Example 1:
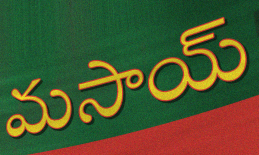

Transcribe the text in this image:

మసాయ్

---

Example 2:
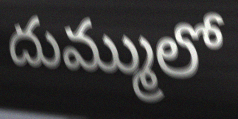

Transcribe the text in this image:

దుమ్ములో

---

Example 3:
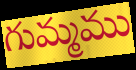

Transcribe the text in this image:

గుమ్మము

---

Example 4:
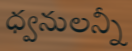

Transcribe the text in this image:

ధ్వనులన్నీ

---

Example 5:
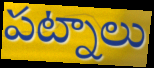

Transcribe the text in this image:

పట్నాలు